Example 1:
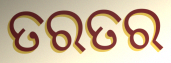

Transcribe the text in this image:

ତରତର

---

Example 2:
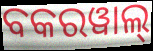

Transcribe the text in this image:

ବକରୱାଲ୍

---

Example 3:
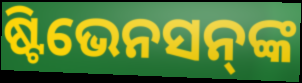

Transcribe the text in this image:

ଷ୍ଟିଭେନସନ୍‍ଙ୍କ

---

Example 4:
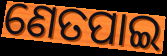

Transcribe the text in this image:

ଣେତପାଇ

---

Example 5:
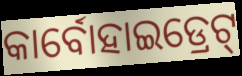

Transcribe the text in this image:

କାର୍ବୋହାଇଡ୍ରେଟ୍